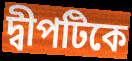
দ্বীপটিকে